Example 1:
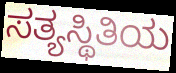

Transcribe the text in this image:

ಸತ್ಯಸ್ಥಿತಿಯ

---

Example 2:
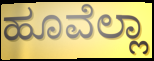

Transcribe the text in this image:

ಹೂವೆಲ್ಲಾ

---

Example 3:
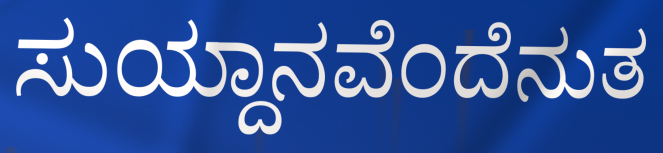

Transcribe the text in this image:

ಸುಯ್ದಾನವೆಂದೆನುತ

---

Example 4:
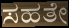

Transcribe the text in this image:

ಸಹತೇ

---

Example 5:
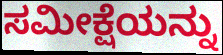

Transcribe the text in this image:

ಸಮೀಕ್ಷೆಯನ್ನು